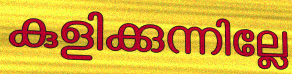
കുളിക്കുന്നില്ലേ